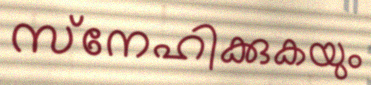
സ്‌നേഹിക്കുകയും